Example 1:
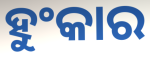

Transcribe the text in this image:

ହୁଂକାର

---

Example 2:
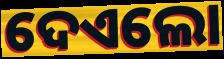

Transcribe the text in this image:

ଦେଏଲୋ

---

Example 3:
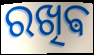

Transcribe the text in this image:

ରଖିଵ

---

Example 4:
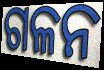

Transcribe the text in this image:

ଗଳନ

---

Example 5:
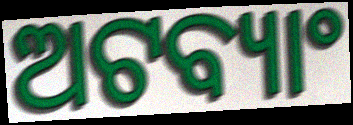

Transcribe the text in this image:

ଅଟବ୍ୟାଂ